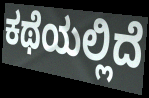
ಕಥೆಯಲ್ಲಿದೆ